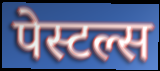
पेस्टल्स